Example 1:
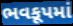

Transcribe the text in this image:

ભવકૂપમાં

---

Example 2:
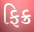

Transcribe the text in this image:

ફિક્ર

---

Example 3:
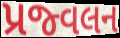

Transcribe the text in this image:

પ્રજ્વલન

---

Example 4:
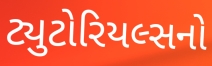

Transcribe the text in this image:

ટ્યુટોરિયલ્સનો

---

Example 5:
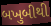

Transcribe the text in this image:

બખુબીથી